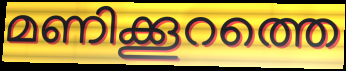
മണിക്കൂറത്തെ